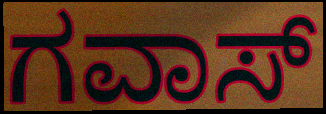
ಗವಾಸ್